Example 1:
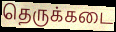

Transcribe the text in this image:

தெருக்கடை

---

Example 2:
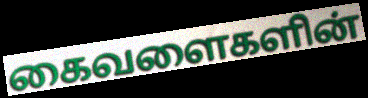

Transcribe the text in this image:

கைவளைகளின்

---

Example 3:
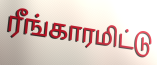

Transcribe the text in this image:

ரீங்காரமிட்டு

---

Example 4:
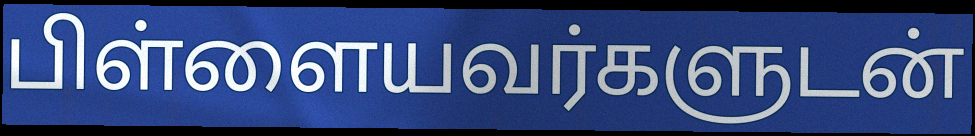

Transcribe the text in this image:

பிள்ளையவர்களுடன்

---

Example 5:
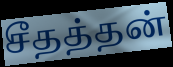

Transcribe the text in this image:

சீதத்தன்